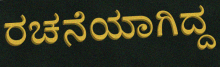
ರಚನೆಯಾಗಿದ್ದ